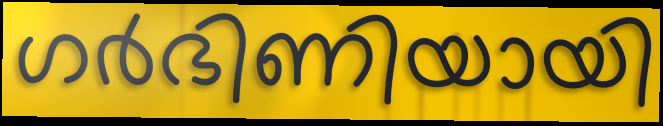
ഗർഭിണിയായി